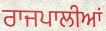
ਰਾਜਪਾਲੀਆਂ